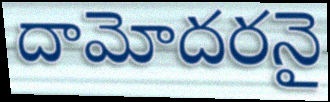
దామోదరనై